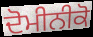
ਦੋਮੀਨੀਕੋ